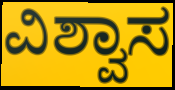
ವಿಶ್ವಾಸ